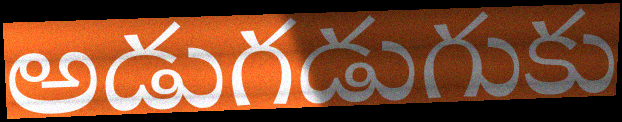
అడుగడుగుకు